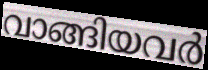
വാങ്ങിയവർ